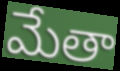
మేతా